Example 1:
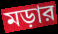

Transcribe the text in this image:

মড়ার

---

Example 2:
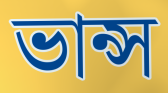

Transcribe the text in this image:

ভান্স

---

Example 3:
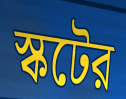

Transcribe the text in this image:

স্কটের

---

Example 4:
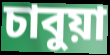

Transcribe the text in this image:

চাবুয়া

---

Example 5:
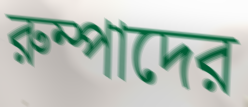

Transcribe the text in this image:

রুম্পাদের